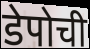
डेपोची